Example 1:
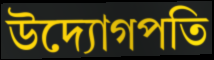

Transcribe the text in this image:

উদ্যোগপতি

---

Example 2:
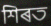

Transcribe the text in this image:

শিৰত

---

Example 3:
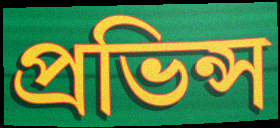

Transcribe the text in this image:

প্ৰভিন্স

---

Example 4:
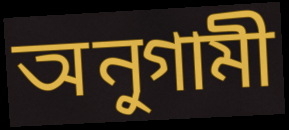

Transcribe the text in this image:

অনুগামী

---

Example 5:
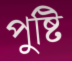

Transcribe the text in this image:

পুষ্টি